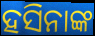
ହସିନାଙ୍କ